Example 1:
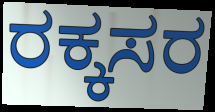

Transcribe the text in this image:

ರಕ್ಕಸರ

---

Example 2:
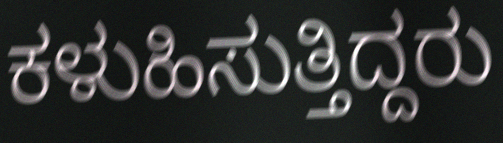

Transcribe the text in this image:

ಕಳುಹಿಸುತ್ತಿದ್ದರು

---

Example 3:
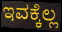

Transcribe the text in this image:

ಇವಕ್ಕೆಲ್ಲ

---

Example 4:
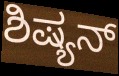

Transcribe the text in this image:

ಶಿಷ್ಯನ್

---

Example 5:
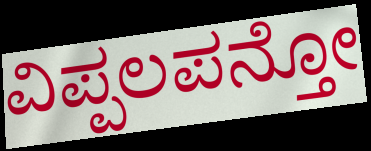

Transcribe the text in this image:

ವಿಪ್ಪಲಪನ್ತೋ